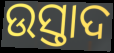
ଉସ୍ତାଦ